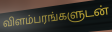
விளம்பரங்களுடன்